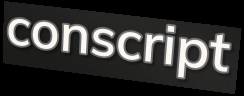
conscript